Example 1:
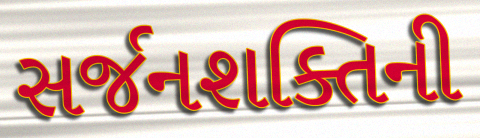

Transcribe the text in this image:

સર્જનશક્તિની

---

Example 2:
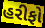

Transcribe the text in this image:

હરીફો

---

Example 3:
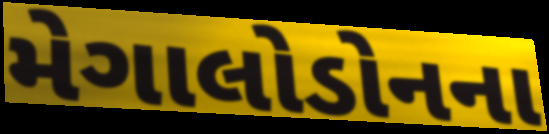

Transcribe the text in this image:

મેગાલોડોનના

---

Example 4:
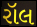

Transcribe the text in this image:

રૉલ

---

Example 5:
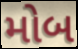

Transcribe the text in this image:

મોબ